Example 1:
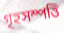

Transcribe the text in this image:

গৃহসম্পত্তি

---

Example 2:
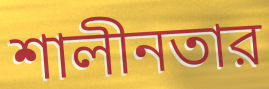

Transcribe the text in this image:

শালীনতার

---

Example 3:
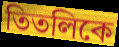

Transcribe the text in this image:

তিতলিকে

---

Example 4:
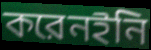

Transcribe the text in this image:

করেনইনি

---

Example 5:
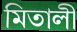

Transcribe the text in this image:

মিতালী